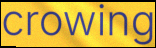
crowing